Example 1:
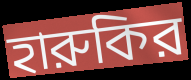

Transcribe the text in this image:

হারুকির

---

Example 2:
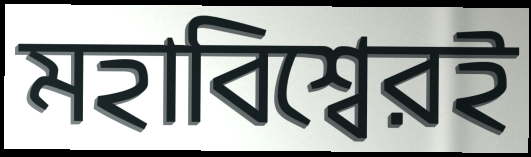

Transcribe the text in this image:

মহাবিশ্বেরই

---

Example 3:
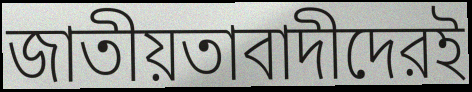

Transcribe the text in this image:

জাতীয়তাবাদীদেরই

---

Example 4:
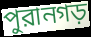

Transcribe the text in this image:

পুরানগড়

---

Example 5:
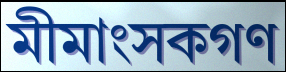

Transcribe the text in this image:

মীমাংসকগণ